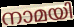
നാമയി